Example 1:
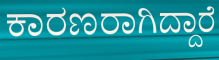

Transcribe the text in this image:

ಕಾರಣರಾಗಿದ್ದಾರೆ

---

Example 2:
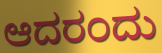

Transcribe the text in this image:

ಆದರಂದು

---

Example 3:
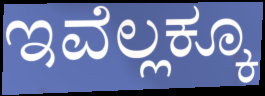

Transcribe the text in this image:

ಇವೆಲ್ಲಕ್ಕೂ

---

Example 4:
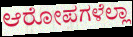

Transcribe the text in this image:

ಆರೋಪಗಳೆಲ್ಲಾ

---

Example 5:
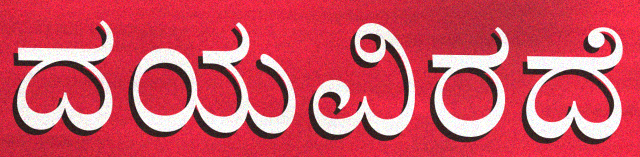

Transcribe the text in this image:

ದಯವಿರದೆ